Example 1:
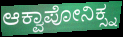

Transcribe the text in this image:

ಆಕ್ವಾಪೋನಿಕ್ಸ್ನ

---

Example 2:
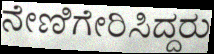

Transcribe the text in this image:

ನೇಣಿಗೇರಿಸಿದ್ದರು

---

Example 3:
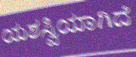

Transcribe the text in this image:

ಯಶಸ್ವಿಯಾಗಿದೆ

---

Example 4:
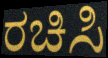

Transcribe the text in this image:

ರಚಿಸಿ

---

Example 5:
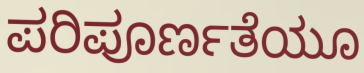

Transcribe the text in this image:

ಪರಿಪೂರ್ಣತೆಯೂ